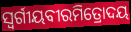
ସ୍ୱର୍ଗୀୟବୀରମିତ୍ରୋଦୟ